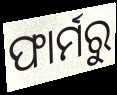
ଫାର୍ମରୁ